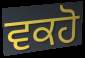
ਵਕਹੋ